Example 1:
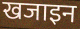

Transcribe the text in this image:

खजाइन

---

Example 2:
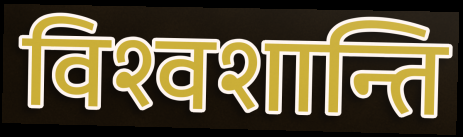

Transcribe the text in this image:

विश्वशान्ति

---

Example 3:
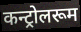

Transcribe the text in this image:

कन्ट्रोलरूम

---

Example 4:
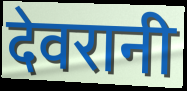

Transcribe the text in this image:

देवरानी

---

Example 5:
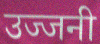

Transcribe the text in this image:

उज्जनी